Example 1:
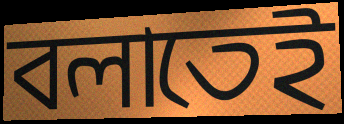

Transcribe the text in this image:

বলাতেই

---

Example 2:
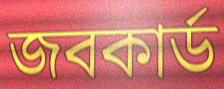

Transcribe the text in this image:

জবকার্ড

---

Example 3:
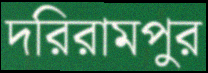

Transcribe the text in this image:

দরিরামপুর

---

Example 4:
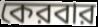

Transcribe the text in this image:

কেরবার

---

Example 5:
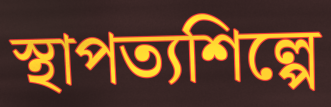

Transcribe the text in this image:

স্থাপত্যশিল্পে